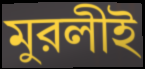
মুরলীই